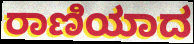
ರಾಣಿಯಾದ